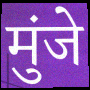
मुंजे